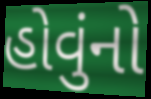
હોવુંનો